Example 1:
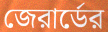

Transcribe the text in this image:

জেরার্ডের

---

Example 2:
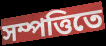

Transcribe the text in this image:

সম্পত্তিতে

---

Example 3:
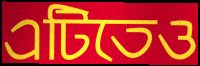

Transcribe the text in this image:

এটিতেও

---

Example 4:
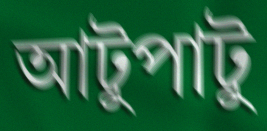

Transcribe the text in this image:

আটুপাটু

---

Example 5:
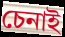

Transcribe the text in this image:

চেনাই